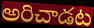
అరిచాడట